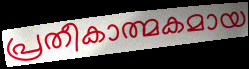
പ്രതീകാത്മകമായ